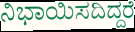
ನಿಭಾಯಿಸದಿದ್ದರೆ